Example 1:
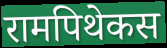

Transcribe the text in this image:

रामपिथेकस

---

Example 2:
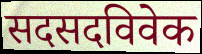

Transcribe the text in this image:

सदसदविवेक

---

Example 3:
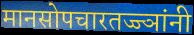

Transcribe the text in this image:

मानसोपचारतज्ज्ञांनी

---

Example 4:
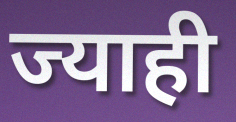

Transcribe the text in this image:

ज्याही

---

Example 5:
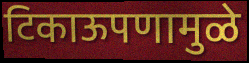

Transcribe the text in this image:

टिकाऊपणामुळे